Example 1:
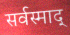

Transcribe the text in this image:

सर्वस्माद्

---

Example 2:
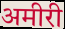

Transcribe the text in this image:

अमीरी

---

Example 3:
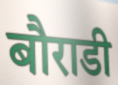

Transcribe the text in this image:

बौराडी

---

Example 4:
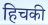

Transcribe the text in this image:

हिचकी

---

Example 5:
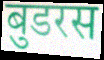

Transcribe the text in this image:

बुडरस